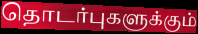
தொடர்புகளுக்கும்